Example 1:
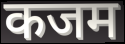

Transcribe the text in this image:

कजम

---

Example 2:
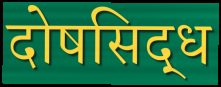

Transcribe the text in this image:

दोषसिद्ध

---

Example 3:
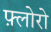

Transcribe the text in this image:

फ़्लोरो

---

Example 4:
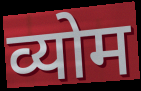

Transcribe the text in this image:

व्योम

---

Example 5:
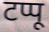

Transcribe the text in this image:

टप्पू